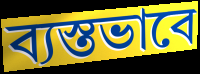
ব্যস্তভাবে